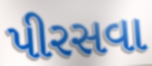
પીરસવા